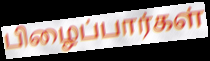
பிழைப்பார்கள்